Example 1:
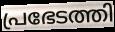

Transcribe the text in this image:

പ്രഭേടത്തി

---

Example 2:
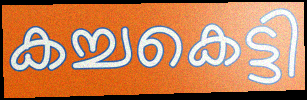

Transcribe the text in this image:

കച്ചകെട്ടി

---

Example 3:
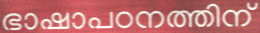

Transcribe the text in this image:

ഭാഷാപഠനത്തിന്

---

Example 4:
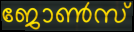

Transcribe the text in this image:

ജോൺസ്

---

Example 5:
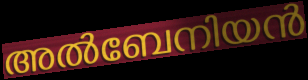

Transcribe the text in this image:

അൽബേനിയൻ